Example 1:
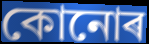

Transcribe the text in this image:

কোনোৰ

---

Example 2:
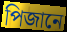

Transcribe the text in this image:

পিজানে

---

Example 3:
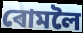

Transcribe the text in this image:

ৰোমলৈ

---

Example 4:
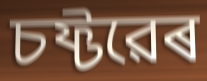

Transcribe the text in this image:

চফ্টৱেৰ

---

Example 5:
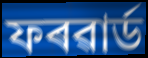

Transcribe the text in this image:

ফৰৱাৰ্ড